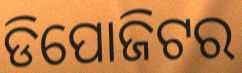
ଡିପୋଜିଟର